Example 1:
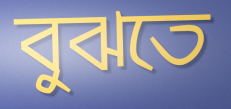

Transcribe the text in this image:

বুঝতে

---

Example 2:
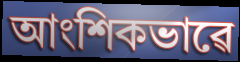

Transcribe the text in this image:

আংশিকভাৱে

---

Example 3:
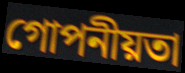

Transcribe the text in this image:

গোপনীয়তা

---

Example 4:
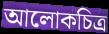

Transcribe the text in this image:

আলোকচিত্ৰ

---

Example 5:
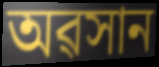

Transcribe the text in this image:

অৱসান